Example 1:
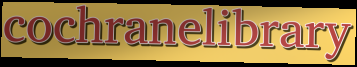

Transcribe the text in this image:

cochranelibrary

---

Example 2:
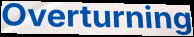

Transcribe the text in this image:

Overturning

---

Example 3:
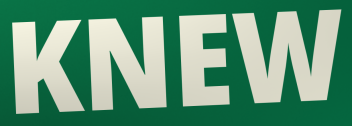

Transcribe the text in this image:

KNEW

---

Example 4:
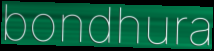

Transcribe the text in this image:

bondhura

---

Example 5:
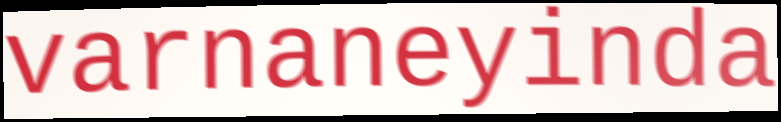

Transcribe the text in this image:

varnaneyinda